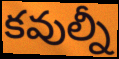
కవుల్నీ